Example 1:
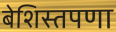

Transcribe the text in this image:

बेशिस्तपणा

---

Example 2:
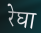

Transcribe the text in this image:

रेघा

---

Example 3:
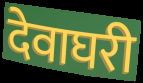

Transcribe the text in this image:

देवाघरी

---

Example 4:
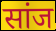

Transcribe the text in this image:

सांज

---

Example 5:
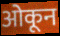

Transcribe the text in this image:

ओकून